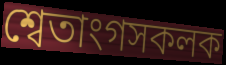
শ্বেতাংগসকলক